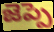
జెప్పె